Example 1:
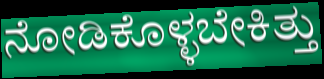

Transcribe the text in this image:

ನೋಡಿಕೊಳ್ಳಬೇಕಿತ್ತು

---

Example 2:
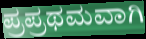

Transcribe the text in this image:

ಪ್ರಪ್ರಥಮವಾಗಿ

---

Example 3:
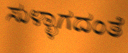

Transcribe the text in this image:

ಸುಳ್ಳಾಗದಂತೆ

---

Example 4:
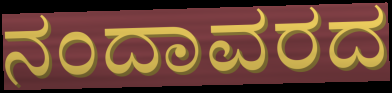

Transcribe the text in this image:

ನಂದಾವರದ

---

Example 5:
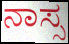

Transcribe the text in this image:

ನಾಸ್ಸ